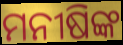
ମନୀଷିଙ୍କ